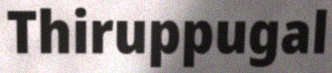
Thiruppugal